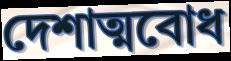
দেশাত্মবোধ